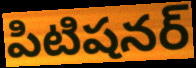
పిటిషనర్